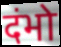
दंभो